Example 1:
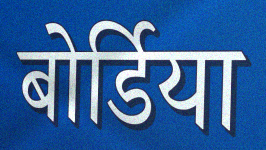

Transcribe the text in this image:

बोर्डिया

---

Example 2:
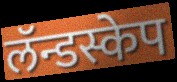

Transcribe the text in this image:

लॅन्डस्केप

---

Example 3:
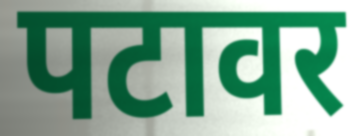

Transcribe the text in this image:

पटावर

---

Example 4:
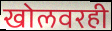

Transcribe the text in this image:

खोलवरही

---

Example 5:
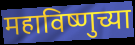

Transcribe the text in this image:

महाविष्णुच्या